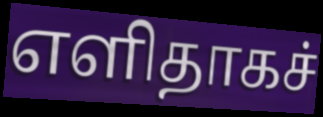
எளிதாகச்